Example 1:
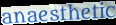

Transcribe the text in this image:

anaesthetic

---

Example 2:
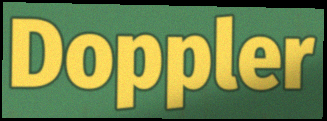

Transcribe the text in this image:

Doppler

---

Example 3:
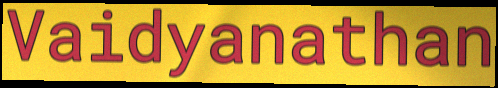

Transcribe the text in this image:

Vaidyanathan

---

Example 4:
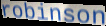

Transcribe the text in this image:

robinson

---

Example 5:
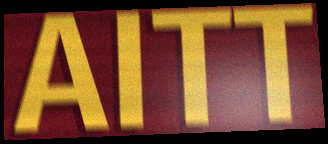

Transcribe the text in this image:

AITT